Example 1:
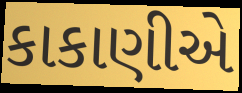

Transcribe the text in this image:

કાકાણીએ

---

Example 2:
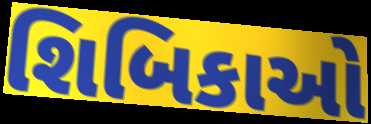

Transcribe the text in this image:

શિબિકાઓ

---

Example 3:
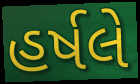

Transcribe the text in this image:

હર્ષલે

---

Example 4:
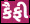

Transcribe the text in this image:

કૈફી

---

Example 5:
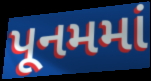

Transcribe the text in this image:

પૂનમમાં